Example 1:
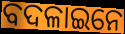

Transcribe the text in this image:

ବଦଳାଇନେ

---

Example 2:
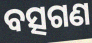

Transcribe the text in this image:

ବତ୍ସଗଣ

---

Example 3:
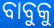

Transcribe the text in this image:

ବାବୁକୁ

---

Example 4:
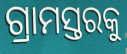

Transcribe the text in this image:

ଗ୍ରାମସ୍ତରକୁ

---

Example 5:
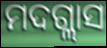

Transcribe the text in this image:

ମଦଗ୍ଲାସ